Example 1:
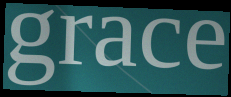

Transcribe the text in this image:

grace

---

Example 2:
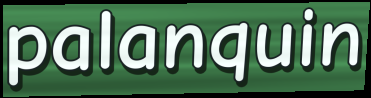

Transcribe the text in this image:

palanquin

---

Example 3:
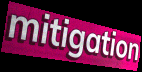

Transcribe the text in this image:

mitigation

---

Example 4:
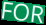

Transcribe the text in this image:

FOR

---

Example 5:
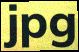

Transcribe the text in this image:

jpg